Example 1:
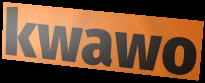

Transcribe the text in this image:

kwawo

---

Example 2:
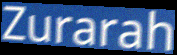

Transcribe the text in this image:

Zurarah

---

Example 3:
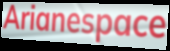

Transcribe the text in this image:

Arianespace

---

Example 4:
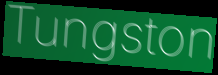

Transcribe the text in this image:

Tungston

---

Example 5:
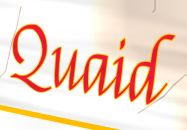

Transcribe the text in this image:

Quaid